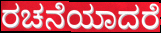
ರಚನೆಯಾದರೆ